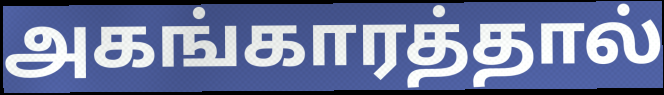
அகங்காரத்தால்